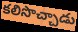
కలిసొచ్చాడు